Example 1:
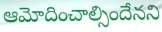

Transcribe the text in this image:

ఆమోదించాల్సిందేనని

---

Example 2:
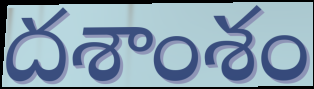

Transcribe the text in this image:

దశాంశం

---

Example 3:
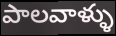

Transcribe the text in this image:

పాలవాళ్ళు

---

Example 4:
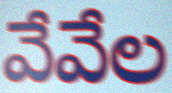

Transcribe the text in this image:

వేవేల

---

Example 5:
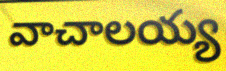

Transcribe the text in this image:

వాచాలయ్య